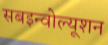
सबइन्वोल्यूशन